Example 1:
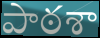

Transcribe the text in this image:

పాఠశా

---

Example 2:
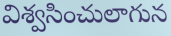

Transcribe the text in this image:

విశ్వసించులాగున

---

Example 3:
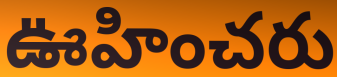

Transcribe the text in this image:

ఊహించరు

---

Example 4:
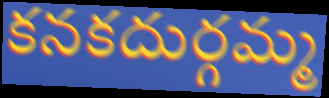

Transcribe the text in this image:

కనకదుర్గమ్మ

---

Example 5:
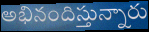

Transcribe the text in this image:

అభినందిస్తున్నారు